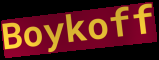
Boykoff